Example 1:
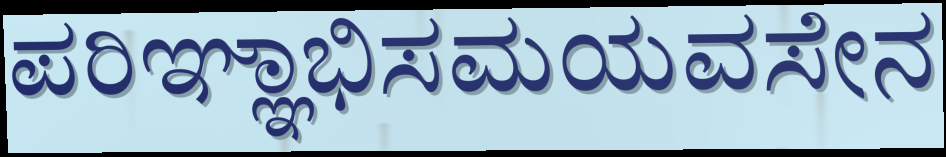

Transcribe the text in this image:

ಪರಿಞ್ಞಾಭಿಸಮಯವಸೇನ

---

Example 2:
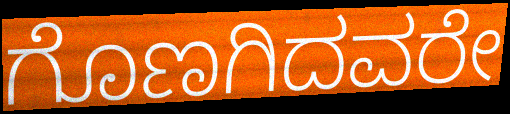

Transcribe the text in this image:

ಗೊಣಗಿದವರೇ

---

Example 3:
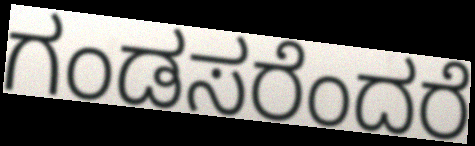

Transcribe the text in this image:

ಗಂಡಸರೆಂದರೆ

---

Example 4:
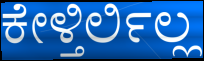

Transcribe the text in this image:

ಕೇಳ್ತಿರ್ಲಿಲ್ಲ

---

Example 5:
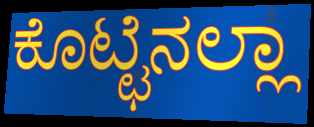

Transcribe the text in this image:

ಕೊಟ್ಟೆನಲ್ಲಾ